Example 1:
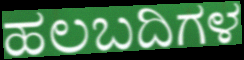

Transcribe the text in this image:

ಹಲಬದಿಗಳ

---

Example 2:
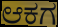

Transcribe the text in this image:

ಆಕಗ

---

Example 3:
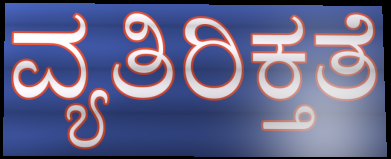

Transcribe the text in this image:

ವ್ಯತಿರಿಕ್ತತೆ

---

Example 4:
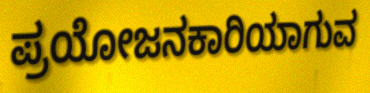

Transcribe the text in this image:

ಪ್ರಯೋಜನಕಾರಿಯಾಗುವ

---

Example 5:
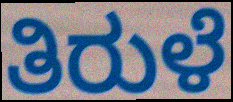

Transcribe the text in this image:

ತಿರುಳೆ